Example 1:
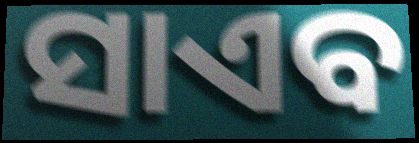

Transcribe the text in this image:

ସାଏବ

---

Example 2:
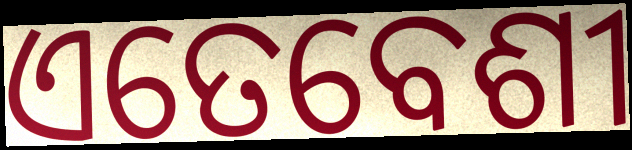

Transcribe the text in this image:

ଏତେବେଶୀ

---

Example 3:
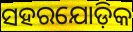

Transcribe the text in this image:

ସହରଯୋଡ଼ିକ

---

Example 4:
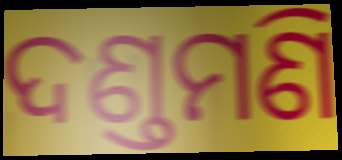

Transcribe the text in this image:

ଦଣ୍ଡମଣି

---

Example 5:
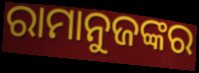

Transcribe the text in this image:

ରାମାନୁଜଙ୍କର